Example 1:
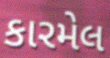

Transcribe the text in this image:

કારમેલ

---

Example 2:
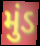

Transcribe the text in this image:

મુંડ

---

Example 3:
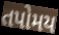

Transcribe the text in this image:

તપોમય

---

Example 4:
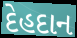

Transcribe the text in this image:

દેહદાન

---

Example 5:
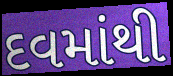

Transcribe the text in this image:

દવમાંથી